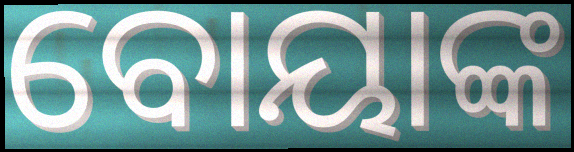
ବୋୟାଙ୍କ